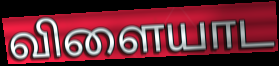
விளையாட